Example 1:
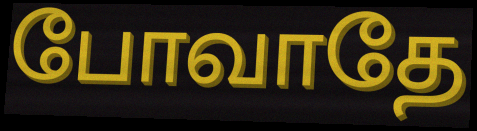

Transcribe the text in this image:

போவாதே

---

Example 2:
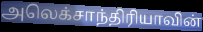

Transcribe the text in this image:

அலெக்சாந்திரியாவின்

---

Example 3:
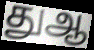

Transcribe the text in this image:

துஆ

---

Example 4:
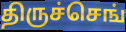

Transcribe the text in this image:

திருச்செங்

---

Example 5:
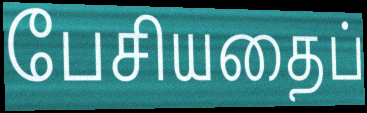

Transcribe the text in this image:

பேசியதைப்